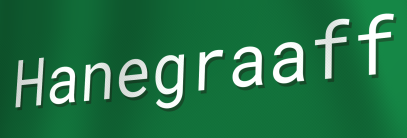
Hanegraaff